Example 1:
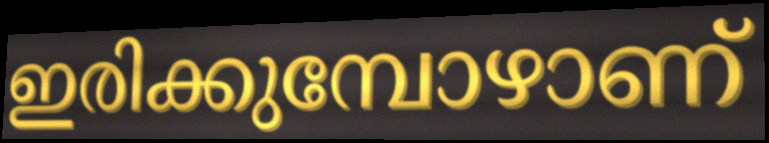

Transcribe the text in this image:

ഇരിക്കുമ്പോഴാണ്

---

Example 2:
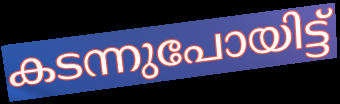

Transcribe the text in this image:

കടന്നുപോയിട്ട്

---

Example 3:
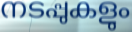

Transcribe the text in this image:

നടപ്പുകളും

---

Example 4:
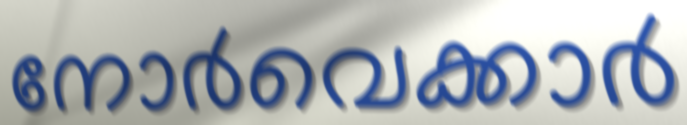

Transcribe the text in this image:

നോർവെക്കാർ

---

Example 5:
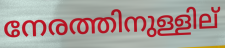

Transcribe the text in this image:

നേരത്തിനുള്ളില്